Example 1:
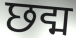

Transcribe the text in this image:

छद्म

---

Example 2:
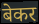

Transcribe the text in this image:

बेकर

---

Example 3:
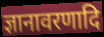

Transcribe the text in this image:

ज्ञानावरणादि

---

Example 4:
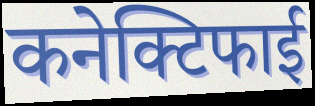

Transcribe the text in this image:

कनेक्टिफाई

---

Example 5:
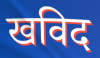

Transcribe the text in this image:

खविद